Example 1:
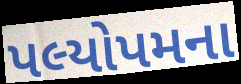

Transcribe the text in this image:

પલ્યોપમના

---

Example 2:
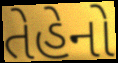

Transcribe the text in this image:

તેહેનો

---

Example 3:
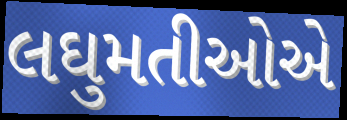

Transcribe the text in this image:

લઘુમતીઓએ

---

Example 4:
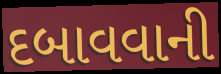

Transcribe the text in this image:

દબાવવાની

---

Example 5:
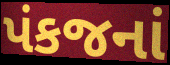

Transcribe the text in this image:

પંકજનાં